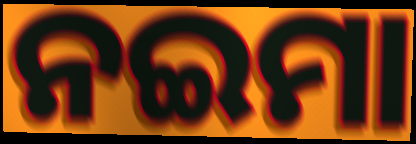
ନଇମା